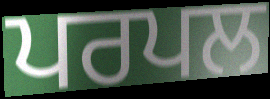
ਪਰਪਲ